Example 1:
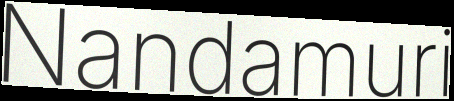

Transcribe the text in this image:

Nandamuri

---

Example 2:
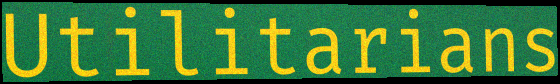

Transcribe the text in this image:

Utilitarians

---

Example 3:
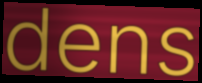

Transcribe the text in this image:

dens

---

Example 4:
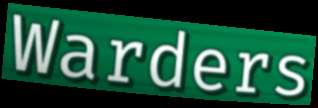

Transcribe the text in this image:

Warders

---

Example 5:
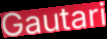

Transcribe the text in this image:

Gautari